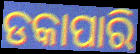
ଡକାପାରି